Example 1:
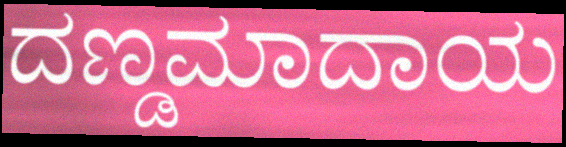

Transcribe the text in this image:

ದಣ್ಡಮಾದಾಯ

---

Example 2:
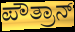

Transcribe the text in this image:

ಪೌತ್ರಾನ್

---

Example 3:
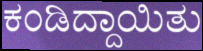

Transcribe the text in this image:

ಕಂಡಿದ್ದಾಯಿತು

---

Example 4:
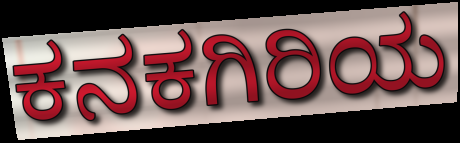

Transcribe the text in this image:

ಕನಕಗಿರಿಯ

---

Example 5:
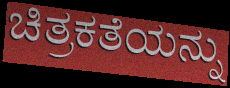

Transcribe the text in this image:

ಚಿತ್ರಕತೆಯನ್ನು